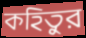
কহিতুর